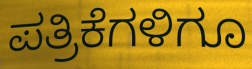
ಪತ್ರಿಕೆಗಳಿಗೂ